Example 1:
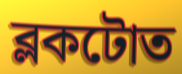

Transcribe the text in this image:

ব্লকটোত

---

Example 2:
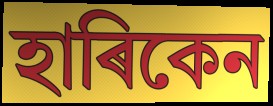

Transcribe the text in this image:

হাৰিকেন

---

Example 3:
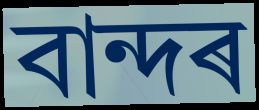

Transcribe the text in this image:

বান্দৰ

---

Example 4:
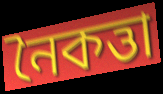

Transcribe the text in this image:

নৈকত্তা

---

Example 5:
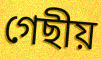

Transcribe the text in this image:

গেছীয়